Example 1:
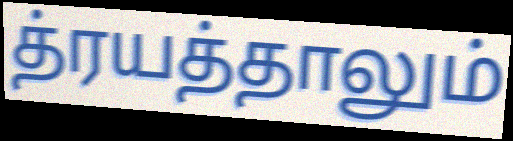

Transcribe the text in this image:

த்ரயத்தாலும்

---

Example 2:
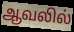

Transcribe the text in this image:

ஆவலில்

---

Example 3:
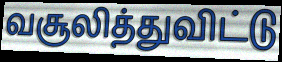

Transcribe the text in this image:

வசூலித்துவிட்டு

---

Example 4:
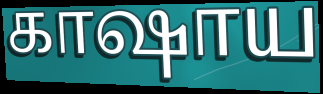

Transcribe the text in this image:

காஷாய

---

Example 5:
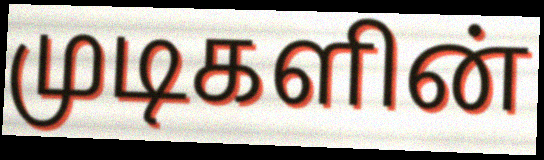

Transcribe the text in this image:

முடிகளின்